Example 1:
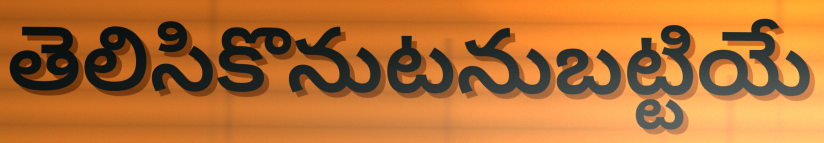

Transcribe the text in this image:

తెలిసికొనుటనుబట్టియే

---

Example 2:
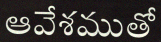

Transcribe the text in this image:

ఆవేశముతో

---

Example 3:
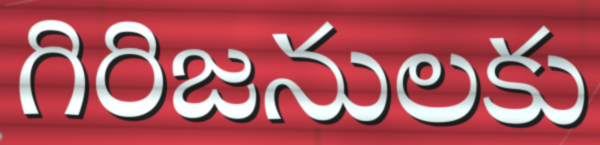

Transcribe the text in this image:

గిరిజనులకు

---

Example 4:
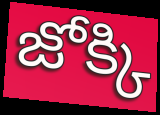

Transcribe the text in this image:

జోక్కి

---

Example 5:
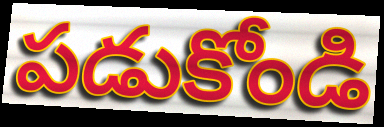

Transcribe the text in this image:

పడుకోండి